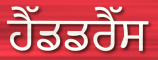
ਹੈੱਡਡਰੈੱਸ